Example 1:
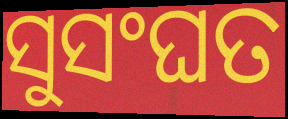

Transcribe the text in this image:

ସୁସଂଘତ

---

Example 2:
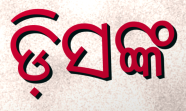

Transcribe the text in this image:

ଡ଼ିସଙ୍କ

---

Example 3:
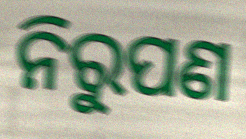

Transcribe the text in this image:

ନିରୁପଣ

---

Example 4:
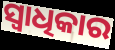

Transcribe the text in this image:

ସ୍ଵାଧିକାର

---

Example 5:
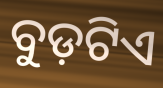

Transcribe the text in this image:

ବୁଡ଼ଟିଏ